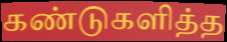
கண்டுகளித்த